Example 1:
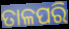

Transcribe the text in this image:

ତାଳପରି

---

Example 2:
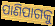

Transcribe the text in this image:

ପାଣିପାଗକୁ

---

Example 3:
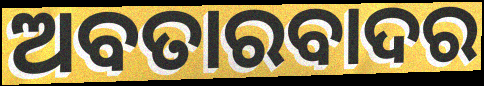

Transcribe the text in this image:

ଅବତାରବାଦର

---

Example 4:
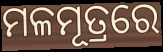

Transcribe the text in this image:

ମଳମୂତ୍ରରେ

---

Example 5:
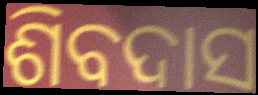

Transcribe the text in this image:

ଶିବଦାସ